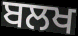
ਬਲਖ